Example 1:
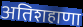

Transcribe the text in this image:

अतिशहाणा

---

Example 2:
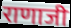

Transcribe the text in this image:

राणाजी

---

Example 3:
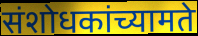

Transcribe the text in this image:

संशोधकांच्यामते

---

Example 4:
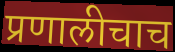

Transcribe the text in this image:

प्रणालीचाच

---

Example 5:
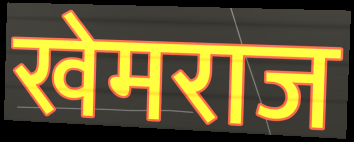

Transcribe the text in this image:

खेमराज